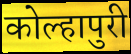
कोल्हापुरी